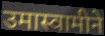
उमास्वामीने